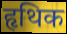
हृथिक